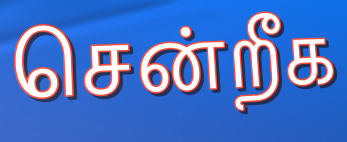
சென்றீக